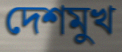
দেশমুখ